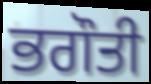
ਭਗੌਤੀ